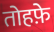
तोहफ़े